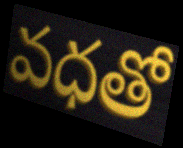
వధతో